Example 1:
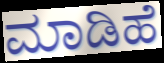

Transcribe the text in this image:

ಮಾಡಿಹೆ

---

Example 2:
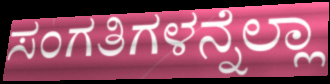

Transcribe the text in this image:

ಸಂಗತಿಗಳನ್ನೆಲ್ಲಾ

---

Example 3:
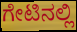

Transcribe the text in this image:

ಗೇಟಿನಲ್ಲಿ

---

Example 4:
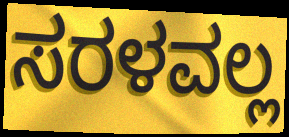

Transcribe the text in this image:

ಸರಳವಲ್ಲ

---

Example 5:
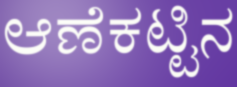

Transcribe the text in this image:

ಆಣೆಕಟ್ಟಿನ